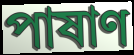
পাষাণ